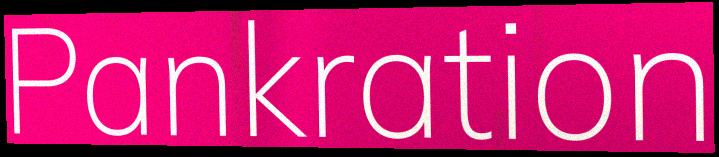
Pankration